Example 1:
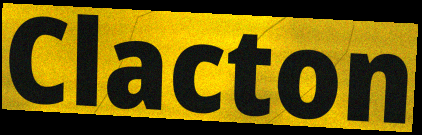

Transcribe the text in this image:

Clacton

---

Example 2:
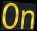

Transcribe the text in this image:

On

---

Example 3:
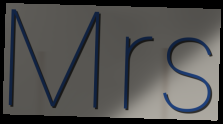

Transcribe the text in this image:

Mrs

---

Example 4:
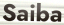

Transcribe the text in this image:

Saiba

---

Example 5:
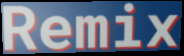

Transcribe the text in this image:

Remix